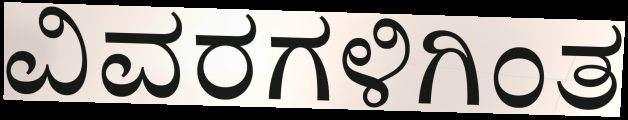
ವಿವರಗಳಿಗಿಂತ